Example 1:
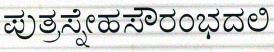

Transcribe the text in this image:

ಪುತ್ರಸ್ನೇಹಸೌರಂಭದಲಿ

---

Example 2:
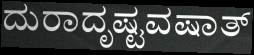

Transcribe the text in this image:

ದುರಾದೃಷ್ಟವಷಾತ್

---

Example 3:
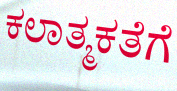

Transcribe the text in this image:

ಕಲಾತ್ಮಕತೆಗೆ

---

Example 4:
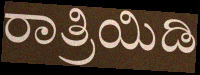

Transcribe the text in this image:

ರಾತ್ರಿಯಿಡಿ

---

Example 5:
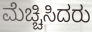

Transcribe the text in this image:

ಮೆಚ್ಚಿಸಿದರು